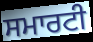
ਸਮਾਰਟੀ